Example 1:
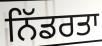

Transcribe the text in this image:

ਨਿੱਡਰਤਾ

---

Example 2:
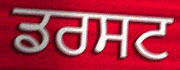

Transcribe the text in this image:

ਡਰਸਟ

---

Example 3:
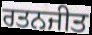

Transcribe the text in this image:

ਰਤਨਜੀਤ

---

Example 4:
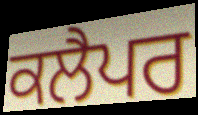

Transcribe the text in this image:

ਕਲੈਪਰ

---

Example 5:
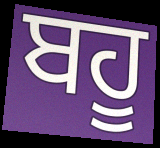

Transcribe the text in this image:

ਬਹੂ